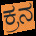
ಕ್ರನ